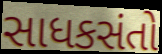
સાધકસંતો